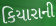
કિયારાની